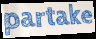
partake